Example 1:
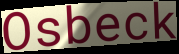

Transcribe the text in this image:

Osbeck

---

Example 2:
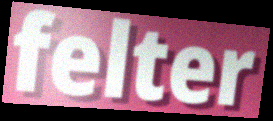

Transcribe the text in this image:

felter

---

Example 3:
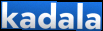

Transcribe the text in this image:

kadala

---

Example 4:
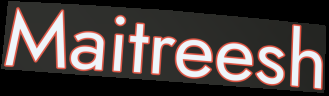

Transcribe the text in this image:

Maitreesh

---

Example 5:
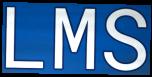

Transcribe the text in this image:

LMS